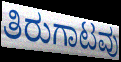
ತಿರುಗಾಟವು